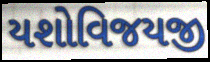
યશોવિજયજી